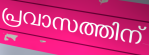
പ്രവാസത്തിന്